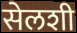
सेलशी